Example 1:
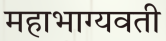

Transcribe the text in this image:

महाभाग्यवती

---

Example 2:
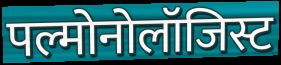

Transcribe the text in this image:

पल्मोनोलॉजिस्ट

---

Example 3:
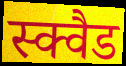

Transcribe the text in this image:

स्क्वैड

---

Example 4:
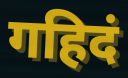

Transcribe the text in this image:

गहिदं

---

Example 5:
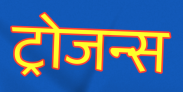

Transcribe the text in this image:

ट्रोजन्स